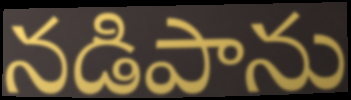
నడిపాను